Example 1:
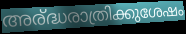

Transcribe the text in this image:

അര്ദ്ധരാത്രിക്കുശേഷം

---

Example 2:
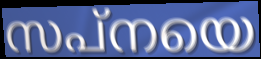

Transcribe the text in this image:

സപ്‌നയെ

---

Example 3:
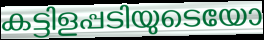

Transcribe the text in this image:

കട്ടിളപ്പടിയുടെയോ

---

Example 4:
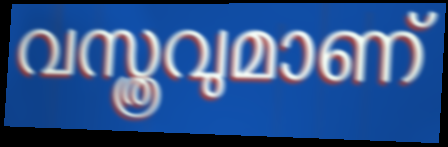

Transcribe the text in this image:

വസ്ത്രവുമാണ്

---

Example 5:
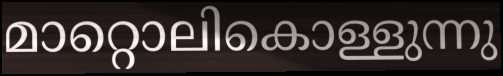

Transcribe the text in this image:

മാറ്റൊലികൊള്ളുന്നു